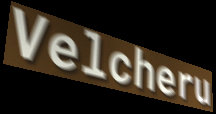
Velcheru